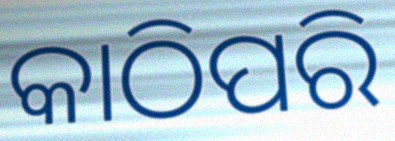
କାଠିପରି